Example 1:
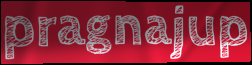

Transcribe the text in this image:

pragnajup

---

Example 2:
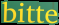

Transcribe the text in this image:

bitte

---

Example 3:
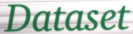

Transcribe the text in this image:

Dataset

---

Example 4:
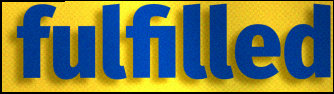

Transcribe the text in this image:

fulfilled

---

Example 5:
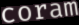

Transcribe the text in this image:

coram